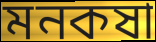
মনকষা